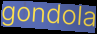
gondola